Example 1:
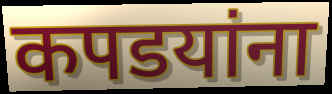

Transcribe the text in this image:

कपडयांना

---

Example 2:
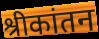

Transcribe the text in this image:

श्रीकांतन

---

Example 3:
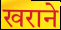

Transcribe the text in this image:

खराने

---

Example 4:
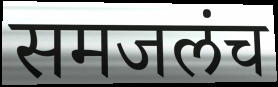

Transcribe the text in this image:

समजलंच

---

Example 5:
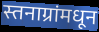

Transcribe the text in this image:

स्तनाग्रांमधून